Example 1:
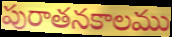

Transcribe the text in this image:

పురాతనకాలము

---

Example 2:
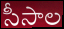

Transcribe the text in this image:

సీసాల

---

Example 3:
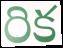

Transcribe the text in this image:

రిక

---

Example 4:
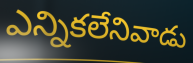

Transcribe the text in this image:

ఎన్నికలేనివాడు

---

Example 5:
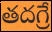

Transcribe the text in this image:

తదగ్రే